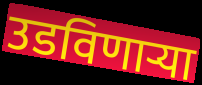
उडविणार्‍या